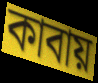
কাবায়